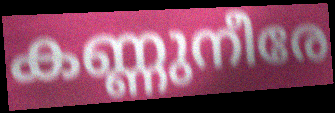
കണ്ണുനീരേ